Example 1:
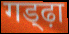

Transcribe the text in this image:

गड्ढ़ा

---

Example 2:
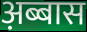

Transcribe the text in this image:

अ़ब्बास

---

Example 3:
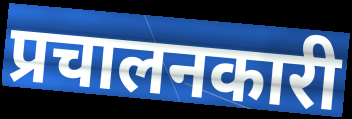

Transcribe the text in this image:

प्रचालनकारी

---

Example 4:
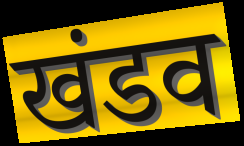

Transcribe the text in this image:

खंडव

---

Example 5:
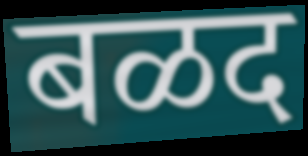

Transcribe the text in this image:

बळद